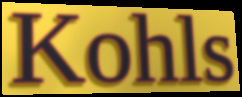
Kohls